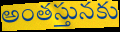
అంతస్తునకు